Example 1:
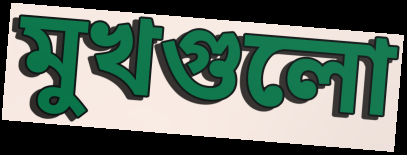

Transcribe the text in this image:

মুখগুলো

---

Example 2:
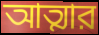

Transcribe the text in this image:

আত্মার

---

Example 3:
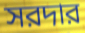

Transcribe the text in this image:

সরদার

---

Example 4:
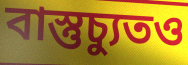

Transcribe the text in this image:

বাস্তুচ্যুতও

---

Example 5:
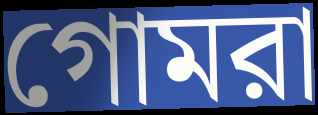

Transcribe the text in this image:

গোমরা